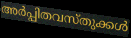
അർപ്പിതവസ്തുക്കൾ